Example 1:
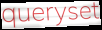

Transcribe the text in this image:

queryset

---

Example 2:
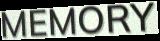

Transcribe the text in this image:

MEMORY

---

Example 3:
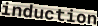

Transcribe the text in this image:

induction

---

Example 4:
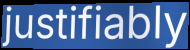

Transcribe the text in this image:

justifiably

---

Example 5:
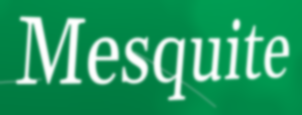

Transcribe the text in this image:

Mesquite